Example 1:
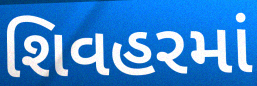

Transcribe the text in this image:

શિવહરમાં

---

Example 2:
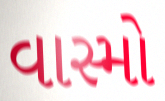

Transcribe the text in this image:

વાસ્મો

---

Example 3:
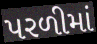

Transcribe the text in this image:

પરળીમાં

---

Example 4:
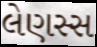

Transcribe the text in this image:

લેણસ્સ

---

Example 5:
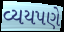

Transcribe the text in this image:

વ્યયપણે